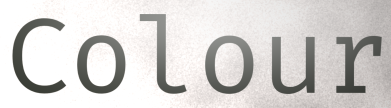
Colour